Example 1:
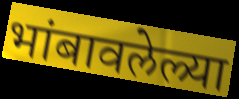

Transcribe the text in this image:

भांबावलेल्या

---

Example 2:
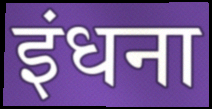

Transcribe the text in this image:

इंधना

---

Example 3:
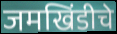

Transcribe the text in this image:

जमखिंडीचे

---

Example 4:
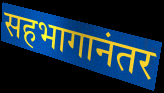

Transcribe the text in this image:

सहभागानंतर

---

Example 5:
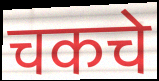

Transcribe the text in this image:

चकचे